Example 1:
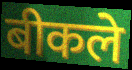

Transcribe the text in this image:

बीकले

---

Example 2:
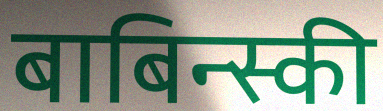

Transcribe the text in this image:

बाबिन्स्की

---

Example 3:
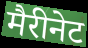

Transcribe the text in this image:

मैरीनेट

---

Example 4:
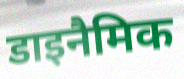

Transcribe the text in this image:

डाइनैमिक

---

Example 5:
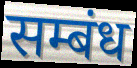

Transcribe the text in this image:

सम्बंध